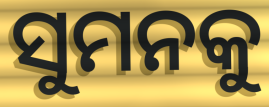
ସୁମନକୁ